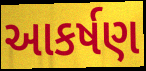
આકર્ષણ